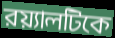
রয়্যালটিকে